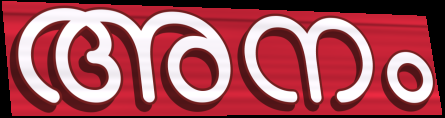
അനം